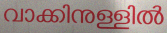
വാക്കിനുള്ളിൽ